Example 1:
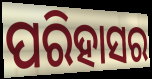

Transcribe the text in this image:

ପରିହାସର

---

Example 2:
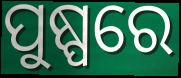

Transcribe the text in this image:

ପୁଷ୍ପରେ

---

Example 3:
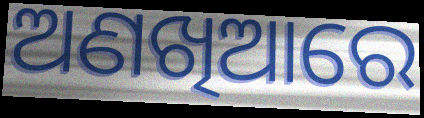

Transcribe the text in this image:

ଅଣଖିଆରେ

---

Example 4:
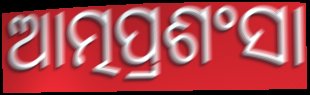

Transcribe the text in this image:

ଆତ୍ମପ୍ରଶଂସା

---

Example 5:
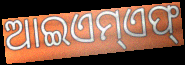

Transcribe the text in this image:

ଆଇଏମ୍ଏଫ୍